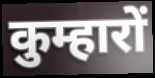
कुम्हारों